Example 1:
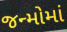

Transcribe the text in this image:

જન્મોમાં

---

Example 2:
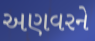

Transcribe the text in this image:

અણવરને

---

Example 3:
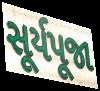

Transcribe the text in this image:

સૂર્યપૂજા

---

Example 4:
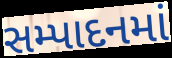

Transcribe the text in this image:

સમ્પાદનમાં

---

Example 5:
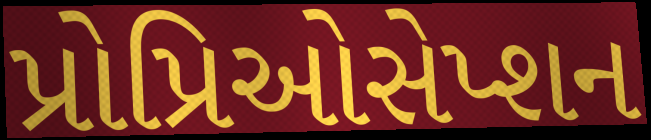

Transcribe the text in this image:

પ્રોપ્રિઓસેપ્શન